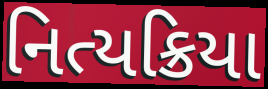
નિત્યક્રિયા